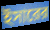
ইসারের